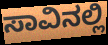
ಸಾವಿನಲ್ಲಿ